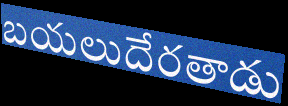
బయలుదేరతాడు